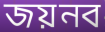
জয়নব